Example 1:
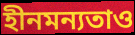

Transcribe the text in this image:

হীনমন্যতাও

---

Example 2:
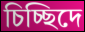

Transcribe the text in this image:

চিচ্ছিদে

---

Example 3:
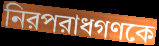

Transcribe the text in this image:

নিরপরাধগণকে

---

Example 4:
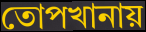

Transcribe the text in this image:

তোপখানায়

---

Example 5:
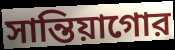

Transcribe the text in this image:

সান্তিয়াগোর